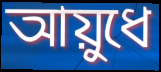
আয়ুধে